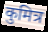
कुमित्र